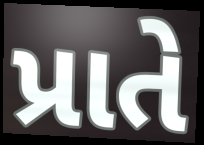
પ્રાતે